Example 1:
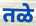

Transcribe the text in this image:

तळे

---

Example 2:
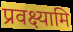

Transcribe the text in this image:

प्रवक्ष्यामि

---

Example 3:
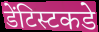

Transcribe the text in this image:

डेंटिस्टकडे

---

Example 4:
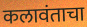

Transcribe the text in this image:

कलावंताचा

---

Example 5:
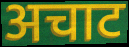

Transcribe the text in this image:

अचाट